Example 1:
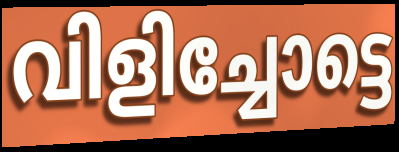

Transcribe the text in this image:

വിളിച്ചോട്ടെ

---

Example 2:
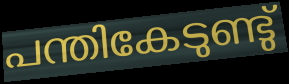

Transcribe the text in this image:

പന്തികേടുണ്ടു്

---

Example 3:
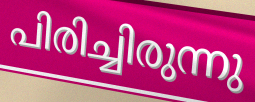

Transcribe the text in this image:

പിരിച്ചിരുന്നു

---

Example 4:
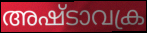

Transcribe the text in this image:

അഷ്ടാവക്ര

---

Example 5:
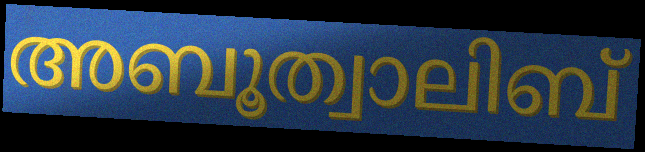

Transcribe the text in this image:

അബൂത്വാലിബ്